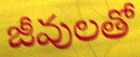
జీవులతో